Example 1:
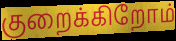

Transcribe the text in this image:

குறைக்கிறோம்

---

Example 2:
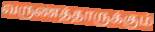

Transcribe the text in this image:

வருணத்தாருக்கும்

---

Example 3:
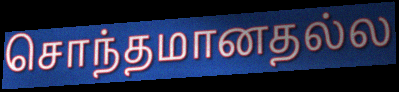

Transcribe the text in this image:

சொந்தமானதல்ல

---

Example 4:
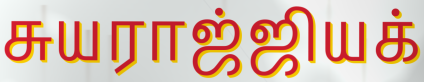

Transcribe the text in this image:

சுயராஜ்ஜியக்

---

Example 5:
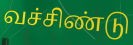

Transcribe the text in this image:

வச்சிண்டு